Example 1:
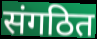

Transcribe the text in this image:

संगठित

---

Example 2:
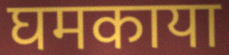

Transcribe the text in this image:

घमकाया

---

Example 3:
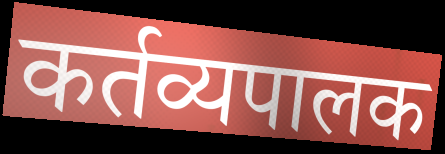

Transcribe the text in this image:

कर्तव्यपालक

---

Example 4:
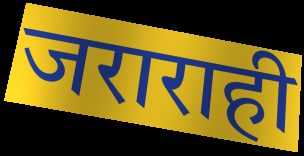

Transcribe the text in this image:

जराराही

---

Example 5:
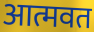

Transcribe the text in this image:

आत्मवत